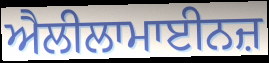
ਐਲੀਲਾਮਾਈਨਜ਼